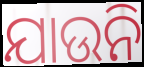
ଯାଉନି